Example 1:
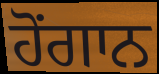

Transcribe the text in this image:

ਹੋਂਗਾਨ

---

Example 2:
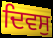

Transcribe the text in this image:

ਦਿਵਸੁ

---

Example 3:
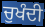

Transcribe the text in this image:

ਚੁਖੰਦੀ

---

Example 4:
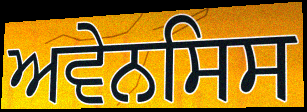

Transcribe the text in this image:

ਅਵੇਨਸਿਸ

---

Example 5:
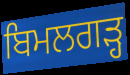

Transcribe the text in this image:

ਬਿਮਲਗੜ੍ਹ